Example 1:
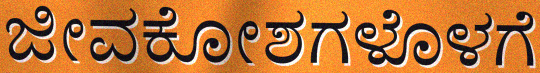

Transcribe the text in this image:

ಜೀವಕೋಶಗಳೊಳಗೆ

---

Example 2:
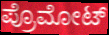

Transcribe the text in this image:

ಪ್ರೊಮೋಟ್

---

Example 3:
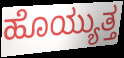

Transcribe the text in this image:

ಹೊಯ್ಯುತ್ತ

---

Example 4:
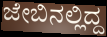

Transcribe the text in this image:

ಜೇಬಿನಲ್ಲಿದ್ದ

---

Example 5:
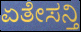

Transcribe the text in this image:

ಏತೇಸನ್ತಿ